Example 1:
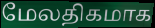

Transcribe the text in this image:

மேலதிகமாக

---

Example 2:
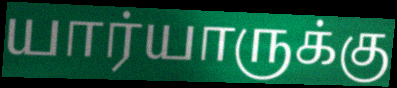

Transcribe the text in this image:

யார்யாருக்கு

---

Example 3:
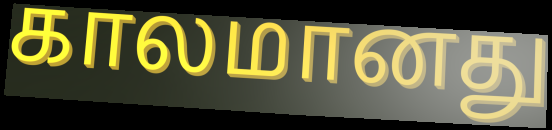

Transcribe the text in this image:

காலமானது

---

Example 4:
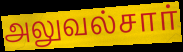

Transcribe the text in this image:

அலுவல்சார்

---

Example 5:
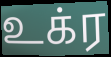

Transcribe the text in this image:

உக்ர